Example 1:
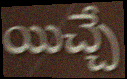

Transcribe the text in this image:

యిచ్చే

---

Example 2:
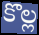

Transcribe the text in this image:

కొల్ల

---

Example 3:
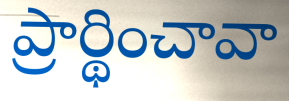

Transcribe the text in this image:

ప్రార్థించావా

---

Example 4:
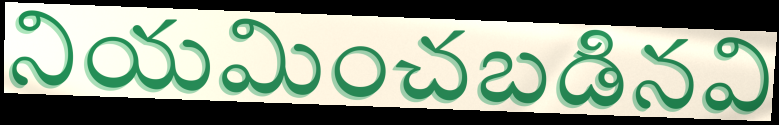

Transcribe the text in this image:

నియమించబడినవి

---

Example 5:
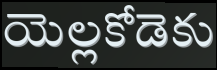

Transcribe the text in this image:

యెల్లకోడెకు